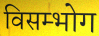
विसम्भोग